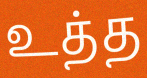
உத்த